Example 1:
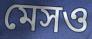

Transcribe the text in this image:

মেসও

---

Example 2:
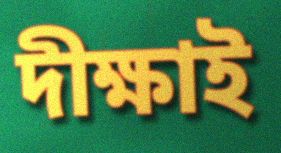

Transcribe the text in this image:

দীক্ষাই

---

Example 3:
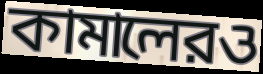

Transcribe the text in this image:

কামালেরও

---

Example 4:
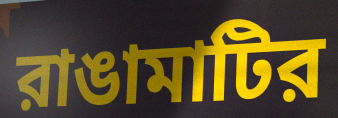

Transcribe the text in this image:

রাঙামাটির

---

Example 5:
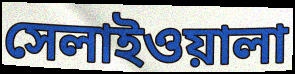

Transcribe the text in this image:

সেলাইওয়ালা